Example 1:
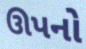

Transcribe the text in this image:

ઊપનો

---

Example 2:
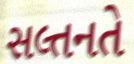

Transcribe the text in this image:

સલ્તનતે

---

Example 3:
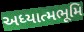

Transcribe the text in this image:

અધ્યાત્મભૂમિ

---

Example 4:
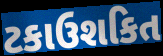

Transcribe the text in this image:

ટકાઉશકિત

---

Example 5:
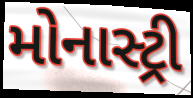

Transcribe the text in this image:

મોનાસ્ટ્રી